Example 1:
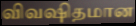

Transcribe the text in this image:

விவஷிதமான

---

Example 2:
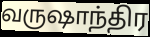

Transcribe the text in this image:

வருஷாந்திர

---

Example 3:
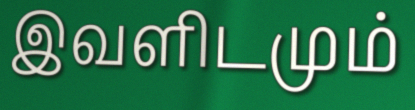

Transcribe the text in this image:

இவளிடமும்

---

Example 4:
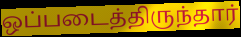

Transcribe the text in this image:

ஒப்படைத்திருந்தார்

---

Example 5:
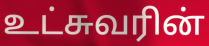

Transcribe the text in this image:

உட்சுவரின்